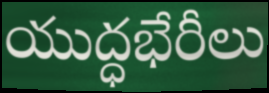
యుద్ధభేరీలు